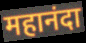
महानंदा